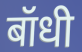
बॉधी